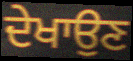
ਦੇਖਾਉਣ